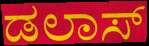
ಡಲಾಸ್